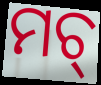
ମଚ୍